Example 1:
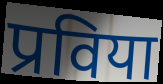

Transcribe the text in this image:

प्रविया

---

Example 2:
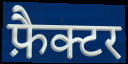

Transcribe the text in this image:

फ़ैक्टर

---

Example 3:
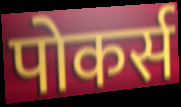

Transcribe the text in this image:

पोकर्स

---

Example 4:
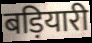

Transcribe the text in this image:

बड़ियारी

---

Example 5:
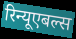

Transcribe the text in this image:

रिन्यूएबल्स